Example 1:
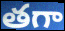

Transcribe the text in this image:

తగా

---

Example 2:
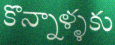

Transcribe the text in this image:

కొన్నాళ్ళకు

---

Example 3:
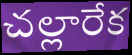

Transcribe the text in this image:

చల్లారేక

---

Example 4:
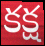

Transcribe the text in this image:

కక్ష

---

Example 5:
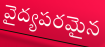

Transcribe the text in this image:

వైద్యపరమైన